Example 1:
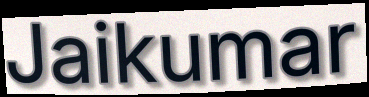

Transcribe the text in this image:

Jaikumar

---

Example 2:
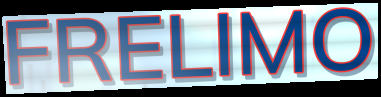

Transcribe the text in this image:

FRELIMO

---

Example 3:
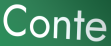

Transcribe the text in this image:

Conte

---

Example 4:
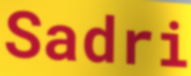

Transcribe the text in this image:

Sadri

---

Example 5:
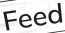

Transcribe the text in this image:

Feed